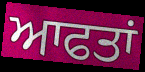
ਆਫਤਾਂ